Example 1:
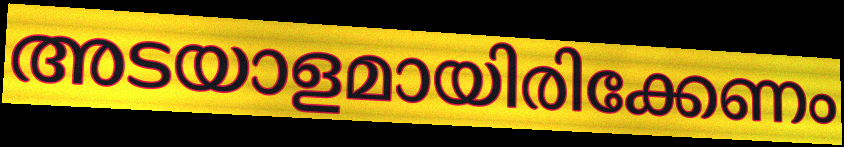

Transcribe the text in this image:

അടയാളമായിരിക്കേണം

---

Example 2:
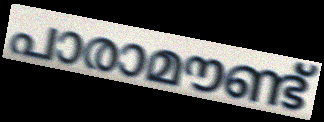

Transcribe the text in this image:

പാരാമൗണ്ട്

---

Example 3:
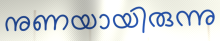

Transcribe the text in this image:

നുണയായിരുന്നു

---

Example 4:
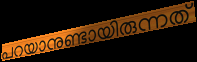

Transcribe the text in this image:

പറയാനുണ്ടായിരുന്നത്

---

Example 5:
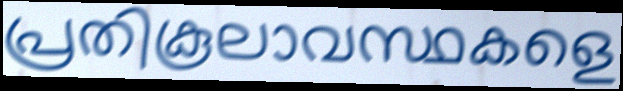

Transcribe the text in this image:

പ്രതികൂലാവസ്ഥകളെ